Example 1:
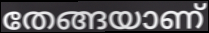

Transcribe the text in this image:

തേങ്ങയാണ്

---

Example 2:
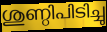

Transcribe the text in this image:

ശുണ്ഠിപിടിച്ചു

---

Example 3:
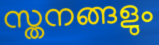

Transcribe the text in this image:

സ്തനങ്ങളും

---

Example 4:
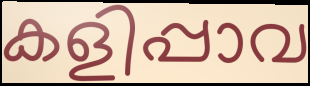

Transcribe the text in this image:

കളിപ്പാവ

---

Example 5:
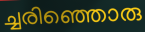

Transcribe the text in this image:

ച്ചരിഞ്ഞൊരു